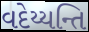
વદેય્યન્તિ